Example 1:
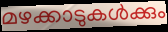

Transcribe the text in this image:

മഴക്കാടുകൾക്കും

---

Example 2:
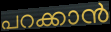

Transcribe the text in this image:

പറക്കാൻ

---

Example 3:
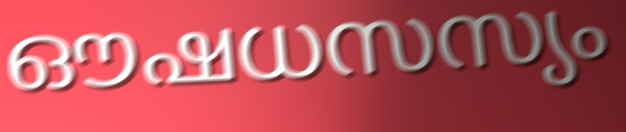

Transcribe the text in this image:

ഔഷധസസ്യം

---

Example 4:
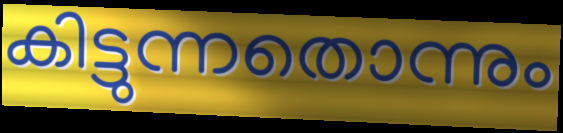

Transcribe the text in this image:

കിട്ടുന്നതൊന്നും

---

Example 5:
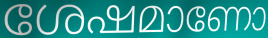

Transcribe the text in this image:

ശേഷമാണോ